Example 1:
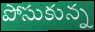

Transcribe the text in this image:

పోసుకున్న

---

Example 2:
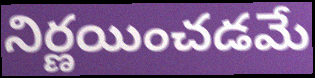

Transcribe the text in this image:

నిర్ణయించడమే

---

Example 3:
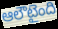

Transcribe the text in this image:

ఆలౌటైంది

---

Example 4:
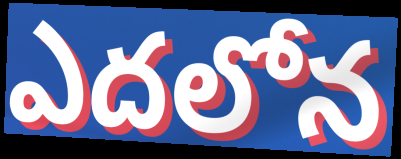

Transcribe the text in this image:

ఎదలోన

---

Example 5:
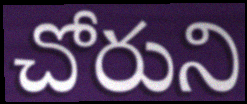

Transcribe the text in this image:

చోరుని